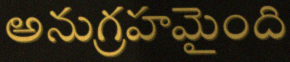
అనుగ్రహమైంది